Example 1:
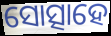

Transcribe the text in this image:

ସୋତ୍ସାହେ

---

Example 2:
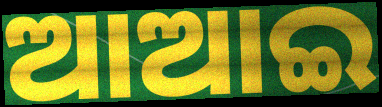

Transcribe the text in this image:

ଆଆଇ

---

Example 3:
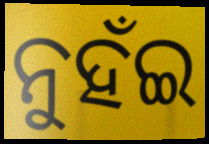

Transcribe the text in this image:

ନୁହଁଇ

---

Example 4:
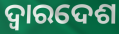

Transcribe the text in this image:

ଦ୍ୱାରଦେଶ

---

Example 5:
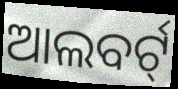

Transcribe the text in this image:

ଆଲବର୍ଟ୍